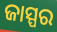
ଜାସ୍ପର